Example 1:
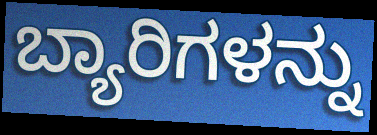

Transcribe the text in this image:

ಬ್ಯಾರಿಗಳನ್ನು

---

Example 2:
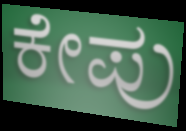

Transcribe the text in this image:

ಕೇಪು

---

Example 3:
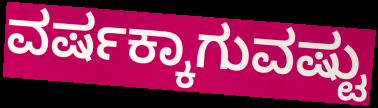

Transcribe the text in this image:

ವರ್ಷಕ್ಕಾಗುವಷ್ಟು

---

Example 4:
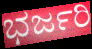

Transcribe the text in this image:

ಭರ್ಜರಿ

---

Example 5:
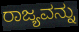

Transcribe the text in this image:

ರಾಜ್ಯವನ್ನು